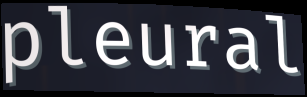
pleural